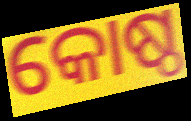
କୋଷ୍ଠ